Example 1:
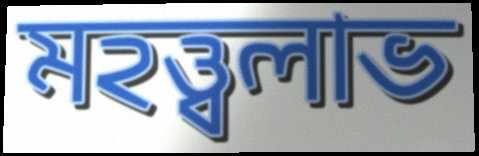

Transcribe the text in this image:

মহত্ত্বলাভ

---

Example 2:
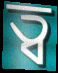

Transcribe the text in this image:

ত্ব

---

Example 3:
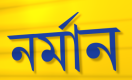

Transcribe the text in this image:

নর্মান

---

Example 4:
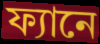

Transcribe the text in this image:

ফ্যানে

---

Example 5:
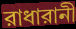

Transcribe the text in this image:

রাধারানী